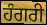
ਹੰਗਰੀ